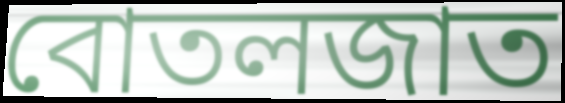
বোতলজাত